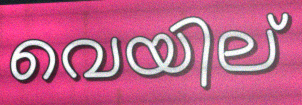
വെയില്